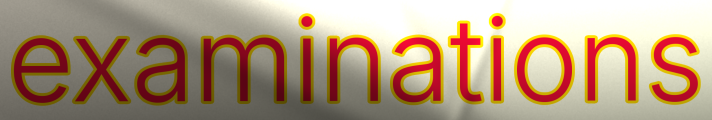
examinations